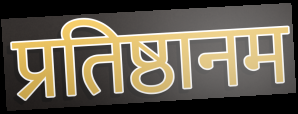
प्रतिष्ठानम